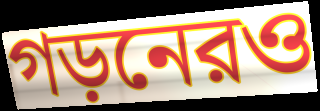
গড়নেরও